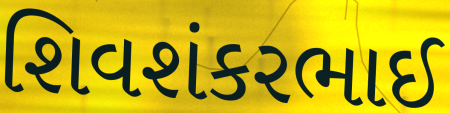
શિવશંકરભાઈ